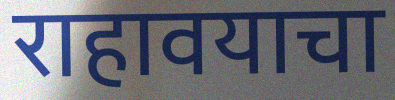
राहावयाचा